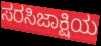
ಸರಸಿಜಾಕ್ಷಿಯ